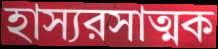
হাস্যরসাত্মক